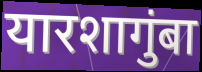
यारशागुंबा